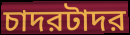
চাদরটাদর